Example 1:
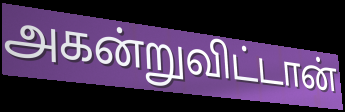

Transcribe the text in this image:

அகன்றுவிட்டான்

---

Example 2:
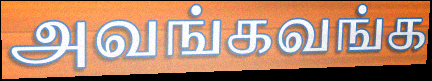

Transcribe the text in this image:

அவங்கவங்க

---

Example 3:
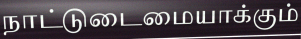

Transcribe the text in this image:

நாட்டுடைமையாக்கும்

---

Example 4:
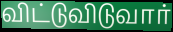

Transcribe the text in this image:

விட்டுவிடுவார்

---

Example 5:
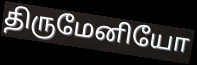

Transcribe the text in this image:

திருமேனியோ